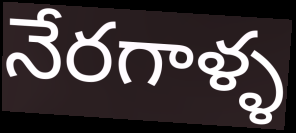
నేరగాళ్ళ